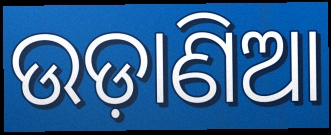
ଉଡ଼ାଣିଆ